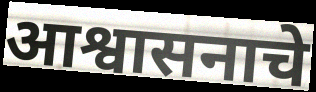
आश्वासनाचे